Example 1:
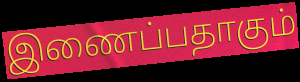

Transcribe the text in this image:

இணைப்பதாகும்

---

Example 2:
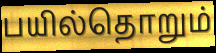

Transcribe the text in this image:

பயில்தொறும்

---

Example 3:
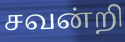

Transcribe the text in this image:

சவன்றி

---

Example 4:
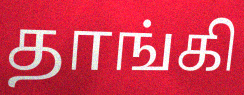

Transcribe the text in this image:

தாங்கி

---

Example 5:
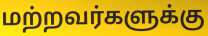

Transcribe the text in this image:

மற்றவர்களுக்கு